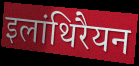
इलांथिरैयन